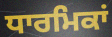
ਧਾਰਮਿਕਾਂ